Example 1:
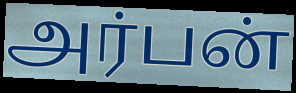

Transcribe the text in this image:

அர்பன்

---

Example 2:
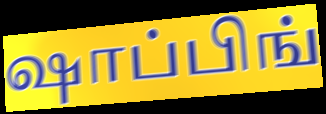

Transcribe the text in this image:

ஷாப்பிங்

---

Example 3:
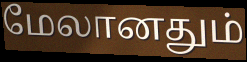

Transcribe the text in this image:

மேலானதும்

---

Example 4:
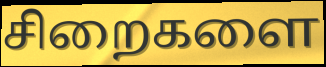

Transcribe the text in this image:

சிறைகளை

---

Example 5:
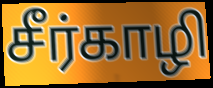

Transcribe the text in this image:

சீர்காழி